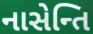
નાસેન્તિ